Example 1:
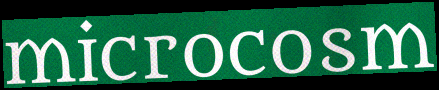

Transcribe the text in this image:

microcosm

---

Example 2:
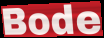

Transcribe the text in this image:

Bode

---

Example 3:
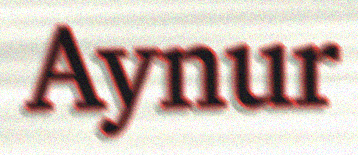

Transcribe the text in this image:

Aynur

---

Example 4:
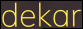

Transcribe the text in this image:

dekar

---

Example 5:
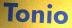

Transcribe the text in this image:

Tonio